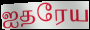
ஐதரேய